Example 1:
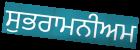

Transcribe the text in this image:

ਸੁਭਰਾਮਨੀਅਮ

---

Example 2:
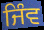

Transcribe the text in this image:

ਜਿੰਵ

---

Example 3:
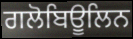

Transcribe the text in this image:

ਗਲੋਬਿਊਲਿਨ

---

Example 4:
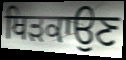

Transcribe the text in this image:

ਥਿੜਕਾਉਣ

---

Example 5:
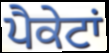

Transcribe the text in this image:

ਪੈਕੇਟਾਂ